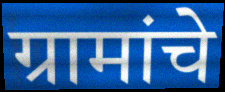
ग्रामांचे